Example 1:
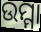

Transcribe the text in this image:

ଉମ୍ମା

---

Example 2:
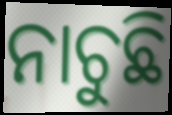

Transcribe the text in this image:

ନାଚୁଛି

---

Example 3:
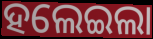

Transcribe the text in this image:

ହଲେଇଲା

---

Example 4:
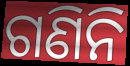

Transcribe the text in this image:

ଗଣିନି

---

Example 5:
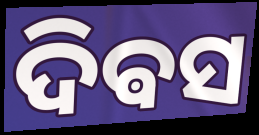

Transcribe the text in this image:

ଦିଵସ